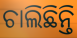
ଚାଲିଛିନ୍ତି